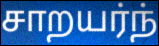
சாறயர்ந்